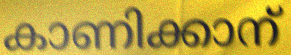
കാണിക്കാന്